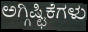
ಅಗ್ಗಿಷ್ಟಿಕೆಗಳು